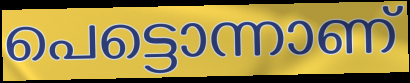
പെട്ടൊന്നാണ്